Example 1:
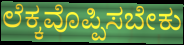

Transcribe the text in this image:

ಲೆಕ್ಕವೊಪ್ಪಿಸಬೇಕು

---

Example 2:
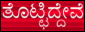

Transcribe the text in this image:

ತೊಟ್ಟಿದ್ದೇವೆ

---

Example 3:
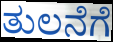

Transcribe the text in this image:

ತುಲನೆಗೆ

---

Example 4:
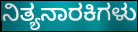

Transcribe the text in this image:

ನಿತ್ಯನಾರಕಿಗಳು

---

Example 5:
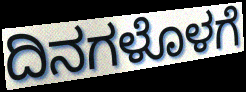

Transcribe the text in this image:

ದಿನಗಳೊಳಗೆ